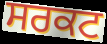
ਸਰਕਟ